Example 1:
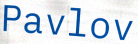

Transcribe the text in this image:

Pavlov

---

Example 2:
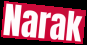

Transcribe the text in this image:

Narak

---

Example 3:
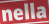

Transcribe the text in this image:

nella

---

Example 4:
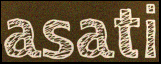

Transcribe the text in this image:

asati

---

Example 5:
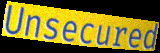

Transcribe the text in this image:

Unsecured